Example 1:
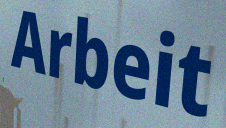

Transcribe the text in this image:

Arbeit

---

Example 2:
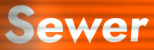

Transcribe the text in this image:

Sewer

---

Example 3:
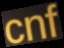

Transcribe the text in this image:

cnf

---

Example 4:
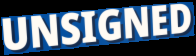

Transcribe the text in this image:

UNSIGNED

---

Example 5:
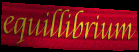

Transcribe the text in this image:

equillibrium